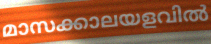
മാസക്കാലയളവിൽ